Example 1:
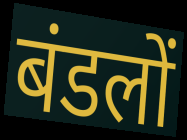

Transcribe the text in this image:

बंडलों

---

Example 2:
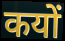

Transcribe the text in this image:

कयों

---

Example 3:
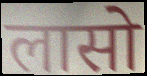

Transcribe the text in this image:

लासो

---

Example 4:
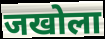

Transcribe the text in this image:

जखोला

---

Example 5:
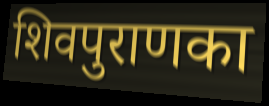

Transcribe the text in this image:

शिवपुराणका